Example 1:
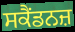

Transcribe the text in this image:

ਸਕੈਂਡਨਜ਼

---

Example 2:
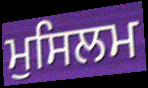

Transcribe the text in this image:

ਮੁਸਿਲਮ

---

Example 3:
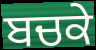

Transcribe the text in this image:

ਬਚਕੇ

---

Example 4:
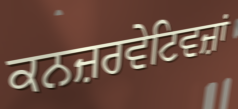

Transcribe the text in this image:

ਕਨਜ਼ਰਵੇਟਿਵਜ਼ਾਂ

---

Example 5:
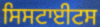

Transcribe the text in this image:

ਸਿਸਟਾਈਟਸ